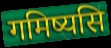
गमिष्यसि